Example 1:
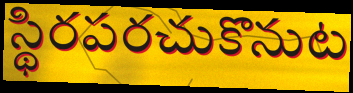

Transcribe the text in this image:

స్థిరపరచుకొనుట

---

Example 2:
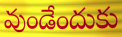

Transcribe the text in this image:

వుండేందుకు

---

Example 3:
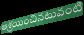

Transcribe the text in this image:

ఆశ్రయించినటువంటి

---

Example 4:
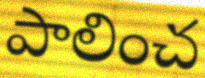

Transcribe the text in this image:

పాలించ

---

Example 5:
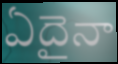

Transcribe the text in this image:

ఏదైనా